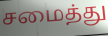
சமைத்து